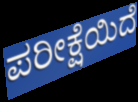
ಪರೀಕ್ಷೆಯಿದೆ